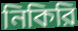
নিকিরি